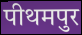
पीथमपुर